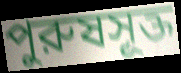
পুৰুষসূক্ত